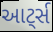
આટ્‌ર્સ